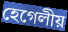
হেগেলীয়